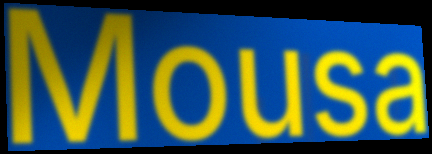
Mousa